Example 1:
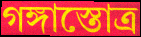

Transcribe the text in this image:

গঙ্গাস্তোত্র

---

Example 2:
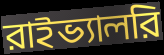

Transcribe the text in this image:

রাইভ্যালরি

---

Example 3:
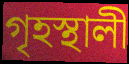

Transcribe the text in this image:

গৃহস্থালী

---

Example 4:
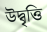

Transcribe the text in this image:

উদ্বৃত্তি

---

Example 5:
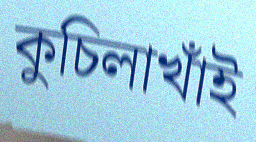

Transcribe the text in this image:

কুচিলাখাঁই